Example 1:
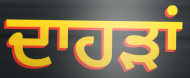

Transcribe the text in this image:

ਦਾਹੜਾਂ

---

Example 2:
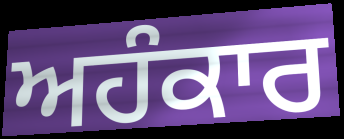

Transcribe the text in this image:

ਅਹੰਕਾਰ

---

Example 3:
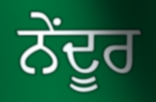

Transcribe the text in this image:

ਨੇਂਦੂਰ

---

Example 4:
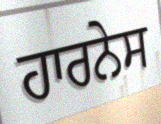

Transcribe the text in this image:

ਹਾਰਨੇਸ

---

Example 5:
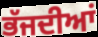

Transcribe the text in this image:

ਭੱਜਦੀਆਂ